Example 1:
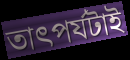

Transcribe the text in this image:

তাৎপর্যটাই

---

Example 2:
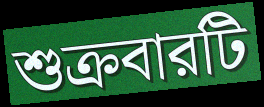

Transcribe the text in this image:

শুক্রবারটি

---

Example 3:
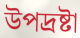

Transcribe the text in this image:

উপদ্রষ্টা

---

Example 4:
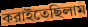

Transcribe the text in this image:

করাইতেছিলাম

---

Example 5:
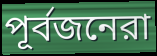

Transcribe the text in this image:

পূর্বজনেরা